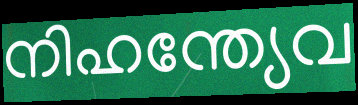
നിഹന്ത്യേവ